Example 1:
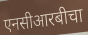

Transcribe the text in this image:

एनसीआरबीचा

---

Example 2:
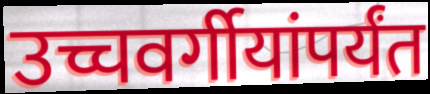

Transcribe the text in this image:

उच्चवर्गीयांपर्यंत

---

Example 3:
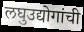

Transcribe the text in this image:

लघुउद्योगांची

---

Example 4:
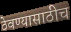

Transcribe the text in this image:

ठेवण्यासाठीच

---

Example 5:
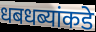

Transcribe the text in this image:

धबधब्यांकडे